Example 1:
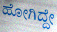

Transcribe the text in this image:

ಹೋಗಿದ್ದೇ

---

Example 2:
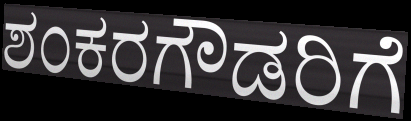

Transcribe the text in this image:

ಶಂಕರಗೌಡರಿಗೆ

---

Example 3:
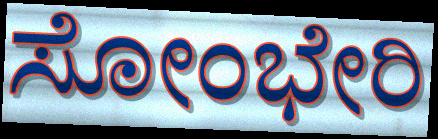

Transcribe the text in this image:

ಸೋಂಭೇರಿ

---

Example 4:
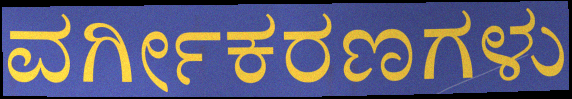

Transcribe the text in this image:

ವರ್ಗೀಕರಣಗಳು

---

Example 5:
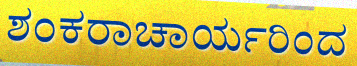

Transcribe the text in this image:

ಶಂಕರಾಚಾರ್ಯರಿಂದ